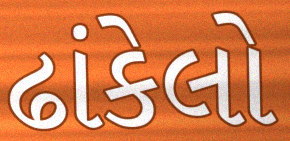
ઢાંકેલો